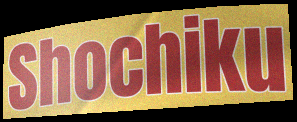
Shochiku